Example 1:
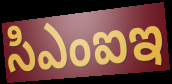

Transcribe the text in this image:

సిఎంఐఇ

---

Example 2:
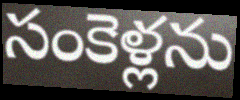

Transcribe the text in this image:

సంకెళ్లను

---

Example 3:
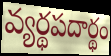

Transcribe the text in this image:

వ్యర్థపదార్థం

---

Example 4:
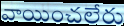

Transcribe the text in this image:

వాయించలేరు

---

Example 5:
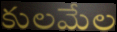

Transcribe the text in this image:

కులమేల